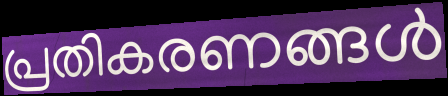
പ്രതികരണങ്ങൾ